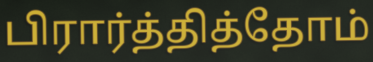
பிரார்த்தித்தோம்